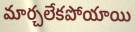
మార్చలేకపోయాయి